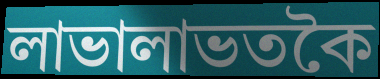
লাভালাভতকৈ